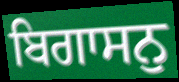
ਬਿਗਾਸਨੁ